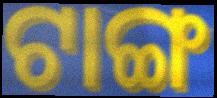
ଟାଙ୍ଗ